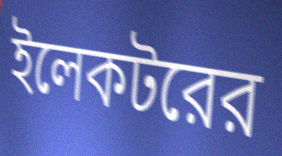
ইলেকটরের